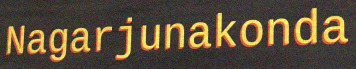
Nagarjunakonda